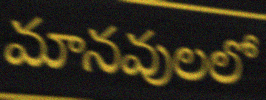
మానవులలో